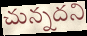
చున్నదని